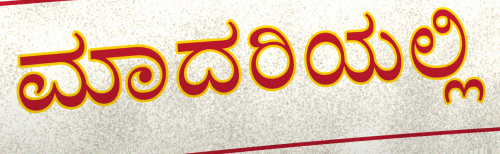
ಮಾದರಿಯಲ್ಲಿ